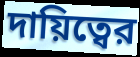
দায়িত্বের